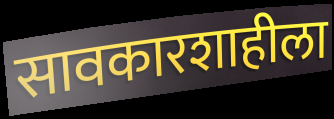
सावकारशाहीला